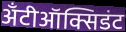
अँटीऑक्सिडंट